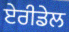
ਏਰੀਡੇਲ